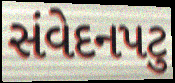
સંવેદનપટુ